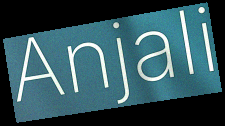
Anjali